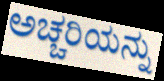
ಅಚ್ಚರಿಯನ್ನು